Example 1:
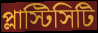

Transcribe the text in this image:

প্লাস্টিসিটি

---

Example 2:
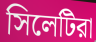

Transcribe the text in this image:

সিলেটিরা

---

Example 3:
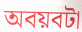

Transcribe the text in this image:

অবয়বটা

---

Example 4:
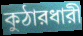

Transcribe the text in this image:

কুঠারধারী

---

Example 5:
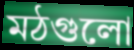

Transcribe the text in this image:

মঠগুলো